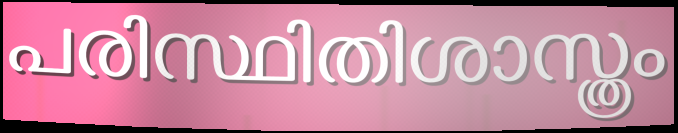
പരിസ്ഥിതിശാസ്ത്രം